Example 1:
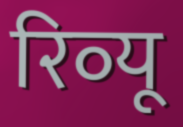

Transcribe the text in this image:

रिव्‍यू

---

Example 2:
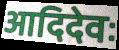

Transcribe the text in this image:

आदिदेवः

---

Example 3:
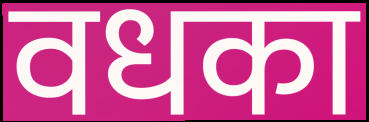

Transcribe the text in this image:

वधका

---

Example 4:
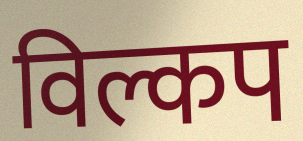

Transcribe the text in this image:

विल्कप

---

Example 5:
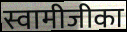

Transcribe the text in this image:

स्वामीजीका